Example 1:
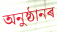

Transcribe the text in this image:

অনুষ্ঠানৰ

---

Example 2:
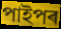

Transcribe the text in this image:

পাইপৰ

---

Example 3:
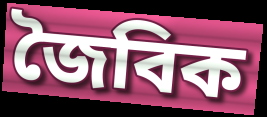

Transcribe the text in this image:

জৈবিক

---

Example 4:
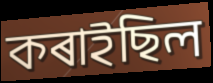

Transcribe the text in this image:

কৰাইছিল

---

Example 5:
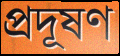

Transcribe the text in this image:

প্ৰদূষণ